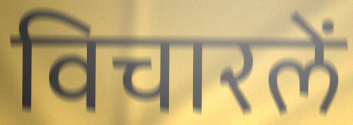
विचारलें